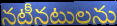
నటీనటులను